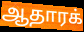
ஆதாரக்